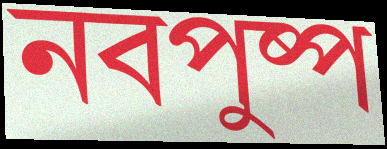
নবপুষ্প